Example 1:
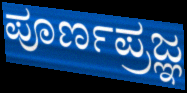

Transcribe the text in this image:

ಪೂರ್ಣಪ್ರಜ್ಞ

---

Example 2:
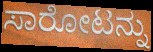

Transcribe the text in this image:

ಸಾರೋಟನ್ನು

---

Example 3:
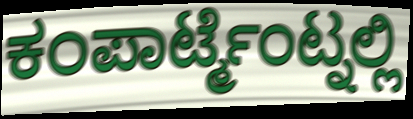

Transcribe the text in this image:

ಕಂಪಾರ್ಟ್ಮೆಂಟ್ನಲ್ಲಿ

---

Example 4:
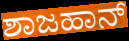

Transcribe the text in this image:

ಶಾಜಹಾನ್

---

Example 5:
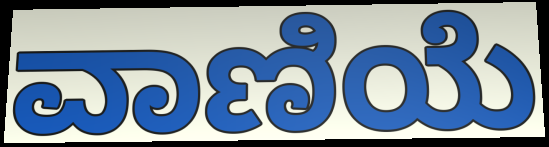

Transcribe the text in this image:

ವಾಣಿಯೆ